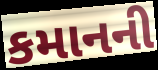
કમાનની